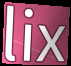
lix